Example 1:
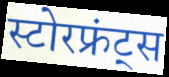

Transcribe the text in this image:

स्टोरफ्रंट्स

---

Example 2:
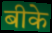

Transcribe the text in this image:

बीके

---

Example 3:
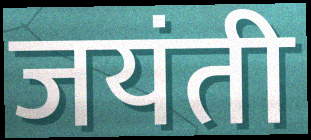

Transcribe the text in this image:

जयंती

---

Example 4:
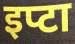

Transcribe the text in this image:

इप्टा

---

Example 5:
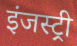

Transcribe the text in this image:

इंजस्ट्री